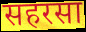
सहरसा